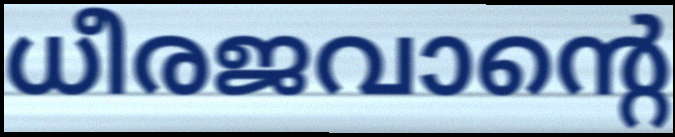
ധീരജവാന്റെ